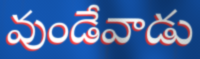
వుండేవాడు